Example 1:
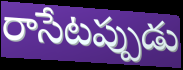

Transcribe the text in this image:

రాసేటప్పుడు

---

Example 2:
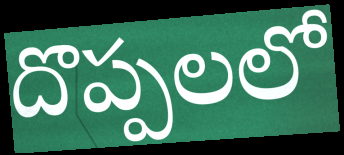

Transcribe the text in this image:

దొప్పలలో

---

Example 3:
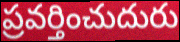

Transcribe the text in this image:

ప్రవర్తించుదురు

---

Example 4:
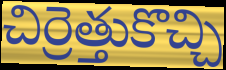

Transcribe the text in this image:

చిర్రెత్తుకొచ్చి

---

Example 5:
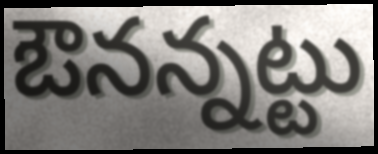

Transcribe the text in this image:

ఔనన్నట్టు